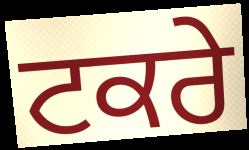
ਟਕਰੇ